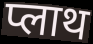
प्लाथ